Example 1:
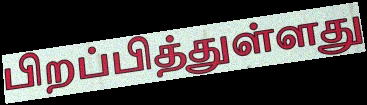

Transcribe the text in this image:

பிறப்பித்துள்ளது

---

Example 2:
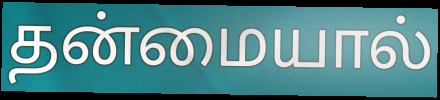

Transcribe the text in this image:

தன்மையால்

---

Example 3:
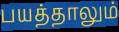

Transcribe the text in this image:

பயத்தாலும்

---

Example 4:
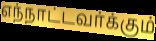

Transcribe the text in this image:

எந்நாட்டவர்க்கும்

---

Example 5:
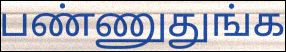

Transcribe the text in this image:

பண்ணுதுங்க